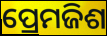
ପ୍ରେମଜିଶ